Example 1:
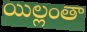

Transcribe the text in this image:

యిల్లంతా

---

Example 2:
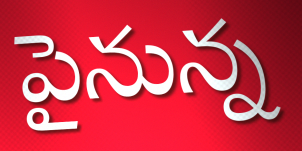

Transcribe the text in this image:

పైనున్న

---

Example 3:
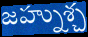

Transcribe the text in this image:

జహ్నుశ్చ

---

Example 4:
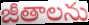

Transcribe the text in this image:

జీతాలను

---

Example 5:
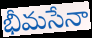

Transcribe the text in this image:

భీమసేనా